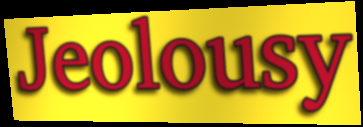
Jeolousy